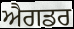
ਐਗਡਰ